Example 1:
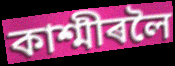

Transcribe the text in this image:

কাশ্মীৰলৈ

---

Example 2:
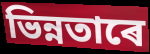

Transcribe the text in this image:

ভিন্নতাৰে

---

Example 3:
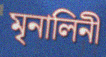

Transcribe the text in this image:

মৃনালিনী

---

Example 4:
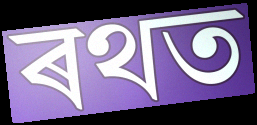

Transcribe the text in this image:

ৰথত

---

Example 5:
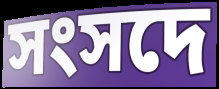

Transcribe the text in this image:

সংসদে